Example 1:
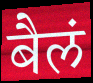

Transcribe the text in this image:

बैलं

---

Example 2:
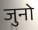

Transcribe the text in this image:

जुनो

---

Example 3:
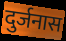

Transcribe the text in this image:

दुर्जनास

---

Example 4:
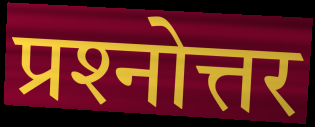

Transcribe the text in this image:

प्रश्‍नोत्तर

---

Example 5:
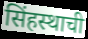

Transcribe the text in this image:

सिंहस्थाची